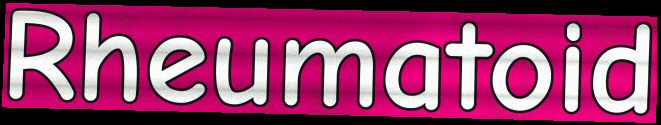
Rheumatoid